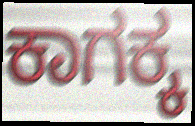
ಕಾಗಕ್ಕ